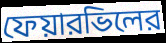
ফেয়ারভিলের